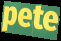
pete